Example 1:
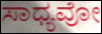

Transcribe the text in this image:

ಸಾಧ್ಯವೋ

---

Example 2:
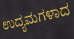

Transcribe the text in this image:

ಉದ್ಯಮಗಳಾದ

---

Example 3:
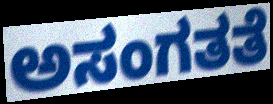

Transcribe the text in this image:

ಅಸಂಗತತೆ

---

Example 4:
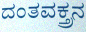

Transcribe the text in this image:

ದಂತವಕ್ತ್ರನ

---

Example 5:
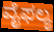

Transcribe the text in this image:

ವೈಫಲ್ಯ